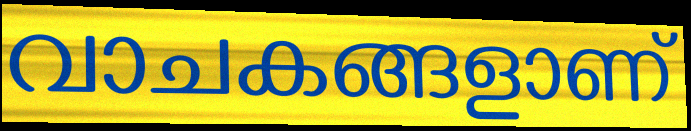
വാചകങ്ങളാണ്